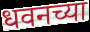
धवनच्या